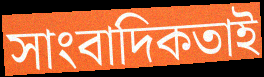
সাংবাদিকতাই